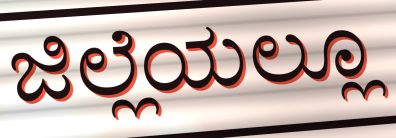
ಜಿಲ್ಲೆಯಲ್ಲೂ